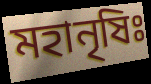
মহানৃষিঃ